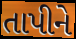
તાપીને